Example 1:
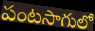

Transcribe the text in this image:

పంటసాగులో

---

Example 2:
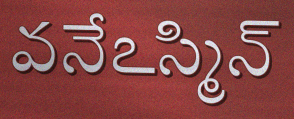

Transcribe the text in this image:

వనేఽస్మిన్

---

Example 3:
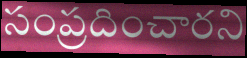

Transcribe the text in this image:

సంప్రదించారని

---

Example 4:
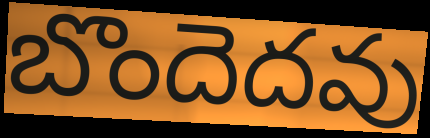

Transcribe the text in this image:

బొందెదవు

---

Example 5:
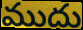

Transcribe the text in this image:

ముదు